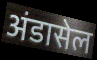
अंडासेल